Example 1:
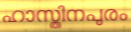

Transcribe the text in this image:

ഹാസ്തിനപുരം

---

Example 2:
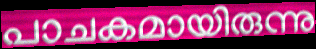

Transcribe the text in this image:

പാചകമായിരുന്നു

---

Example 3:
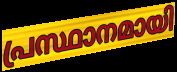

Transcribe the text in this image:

പ്രസ്ഥാനമായി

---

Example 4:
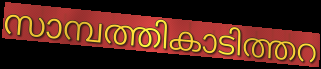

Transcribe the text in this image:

സാമ്പത്തികാടിത്തറ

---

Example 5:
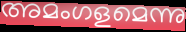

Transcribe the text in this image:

അമംഗളമെന്നു